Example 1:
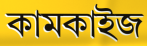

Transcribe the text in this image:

কামকাইজ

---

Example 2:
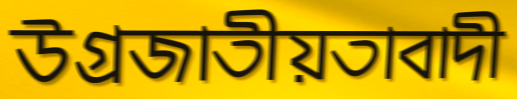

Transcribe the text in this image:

উগ্রজাতীয়তাবাদী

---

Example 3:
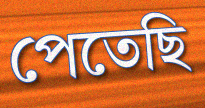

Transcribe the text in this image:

পেতেছি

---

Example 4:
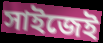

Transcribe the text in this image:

সাইজেই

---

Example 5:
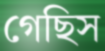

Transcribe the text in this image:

গেছিস